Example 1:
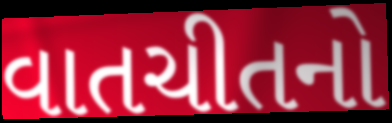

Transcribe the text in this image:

વાતચીતનો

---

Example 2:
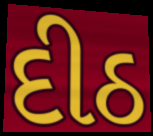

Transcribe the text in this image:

દીઠ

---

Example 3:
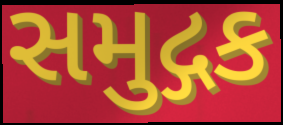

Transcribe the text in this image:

સમુદ્ગક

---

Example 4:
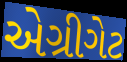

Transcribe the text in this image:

એગ્રીગેટ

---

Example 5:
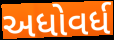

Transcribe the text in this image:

અધોવર્ધ